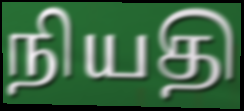
நியதி